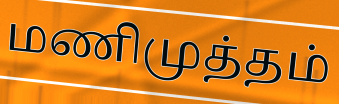
மணிமுத்தம்